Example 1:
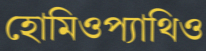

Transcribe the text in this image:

হোমিওপ্যাথিও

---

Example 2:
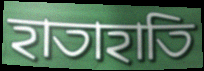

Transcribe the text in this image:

হাতাহাতি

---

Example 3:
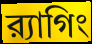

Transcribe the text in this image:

র‍্যাগিং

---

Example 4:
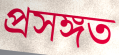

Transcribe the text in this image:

প্রসঙ্গত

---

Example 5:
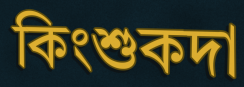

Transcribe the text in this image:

কিংশুকদা